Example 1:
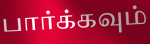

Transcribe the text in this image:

பார்க்கவும்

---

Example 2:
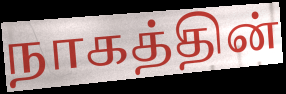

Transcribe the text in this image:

நாகத்தின்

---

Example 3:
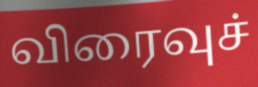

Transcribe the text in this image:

விரைவுச்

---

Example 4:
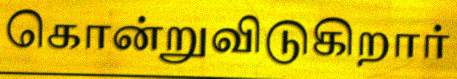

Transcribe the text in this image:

கொன்றுவிடுகிறார்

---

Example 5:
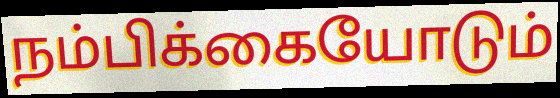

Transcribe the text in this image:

நம்பிக்கையோடும்